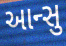
આન્સુ